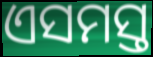
ଏସମସ୍ତ